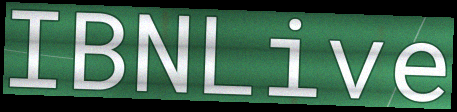
IBNLive